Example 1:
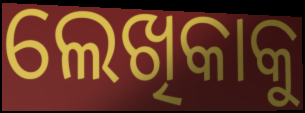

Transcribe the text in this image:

ଲେଖିକାକୁ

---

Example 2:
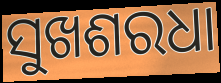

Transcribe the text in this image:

ସୁଖଶରଧା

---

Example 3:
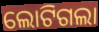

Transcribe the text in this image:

ଲୋଟିଗଲା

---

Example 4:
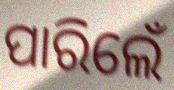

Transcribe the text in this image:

ପାରିଲେଁ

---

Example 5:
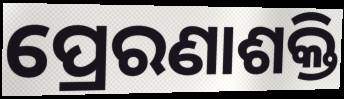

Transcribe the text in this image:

ପ୍ରେରଣାଶକ୍ତି